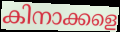
കിനാക്കളെ